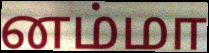
னம்மா